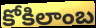
కోకిలాంబ